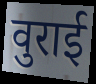
वुराई